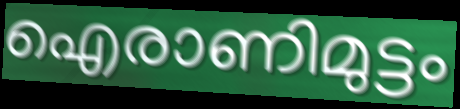
ഐരാണിമുട്ടം